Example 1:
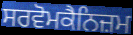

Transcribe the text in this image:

ਸਰਵੋਮਕੈਨਿਜ਼ਮ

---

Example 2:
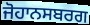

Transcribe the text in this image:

ਜੋਹਾਨਸਬਰਗ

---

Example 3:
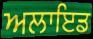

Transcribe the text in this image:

ਅਲਾਇਡ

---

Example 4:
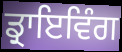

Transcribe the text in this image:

ਡ੍ਰਾਇਵਿੰਗ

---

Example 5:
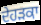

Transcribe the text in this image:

ਦੇਹੜਕਾ